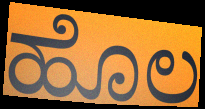
ಹೊಲ